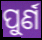
ପୁର୍ଣ